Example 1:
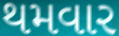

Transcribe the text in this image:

થમવાર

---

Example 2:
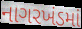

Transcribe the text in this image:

નાગરખંડમાં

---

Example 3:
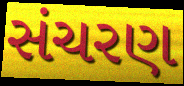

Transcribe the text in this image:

સંચરણ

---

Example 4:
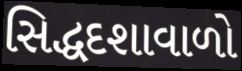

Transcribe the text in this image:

સિદ્ધદશાવાળો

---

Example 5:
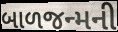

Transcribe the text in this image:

બાળજન્મની